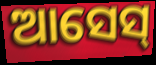
ଆସେସ୍